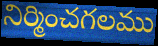
నిర్మించగలము